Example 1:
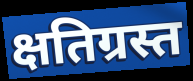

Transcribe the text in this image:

क्षतिग्रस्त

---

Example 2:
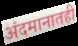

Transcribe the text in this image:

अंदमानातही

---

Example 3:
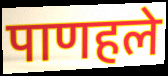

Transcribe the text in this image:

पाणहले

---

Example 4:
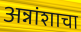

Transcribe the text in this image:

अन्नांशाचा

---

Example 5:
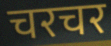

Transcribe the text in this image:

चरचर